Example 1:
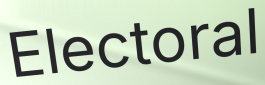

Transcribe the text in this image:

Electoral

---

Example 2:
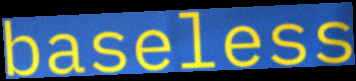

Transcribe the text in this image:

baseless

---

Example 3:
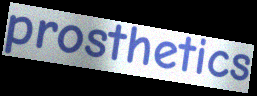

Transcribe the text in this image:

prosthetics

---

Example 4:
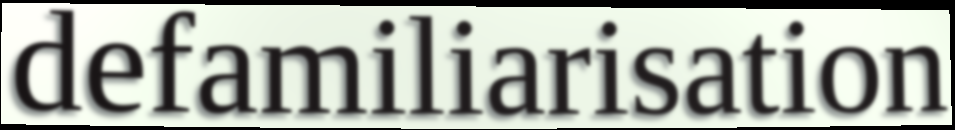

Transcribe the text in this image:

defamiliarisation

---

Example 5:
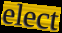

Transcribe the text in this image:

elect